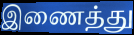
இணைத்து